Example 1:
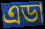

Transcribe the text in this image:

এডা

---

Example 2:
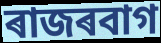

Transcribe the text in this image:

ৰাজৰবাগ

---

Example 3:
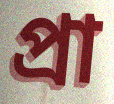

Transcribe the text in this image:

প্ৰা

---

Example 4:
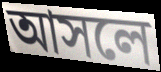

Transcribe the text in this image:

আসলে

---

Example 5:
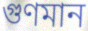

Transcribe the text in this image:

গুণমান